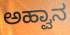
ಅಹ್ವಾನ